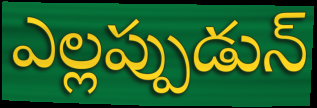
ఎల్లప్పుడున్